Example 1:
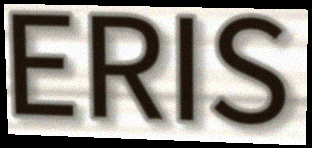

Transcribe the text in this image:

ERIS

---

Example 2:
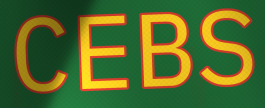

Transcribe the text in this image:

CEBS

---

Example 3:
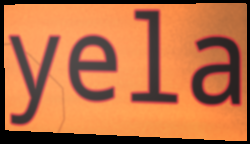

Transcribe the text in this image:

yela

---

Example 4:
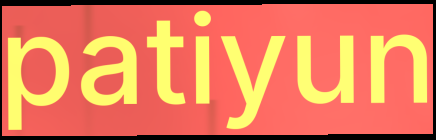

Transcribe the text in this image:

patiyun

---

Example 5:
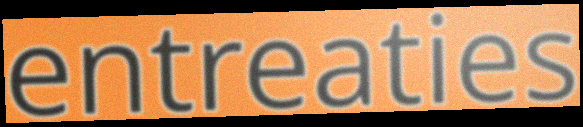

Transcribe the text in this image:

entreaties